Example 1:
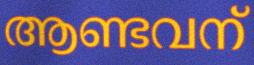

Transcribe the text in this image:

ആണ്ടവന്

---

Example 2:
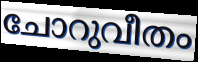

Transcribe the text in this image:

ചോറുവീതം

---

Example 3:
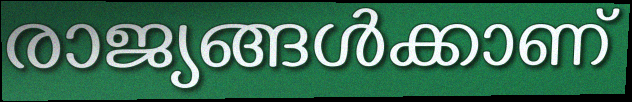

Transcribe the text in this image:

രാജ്യങ്ങൾക്കാണ്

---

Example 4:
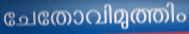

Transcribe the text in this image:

ചേതോവിമുത്തിം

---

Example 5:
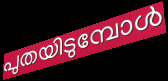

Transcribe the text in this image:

പുതയിടുമ്പോൾ